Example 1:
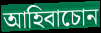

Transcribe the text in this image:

আহিবাচোন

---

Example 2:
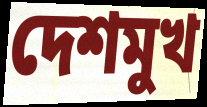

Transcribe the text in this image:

দেশমুখ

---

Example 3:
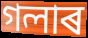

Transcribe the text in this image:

গলাৰ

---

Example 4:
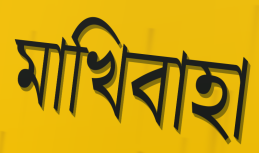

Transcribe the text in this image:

মাখিবাহা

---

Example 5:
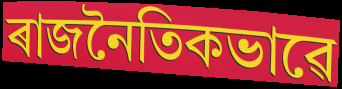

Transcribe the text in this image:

ৰাজনৈতিকভাৱে